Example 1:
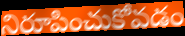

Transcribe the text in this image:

నిరూపించుకోవడం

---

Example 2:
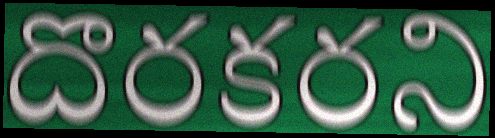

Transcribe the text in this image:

దొరకరని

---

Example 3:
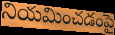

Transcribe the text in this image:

నియమించడంపై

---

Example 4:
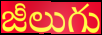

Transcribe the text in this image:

జీలుగు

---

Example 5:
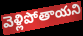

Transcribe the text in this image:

వెళ్లిపోతాయని